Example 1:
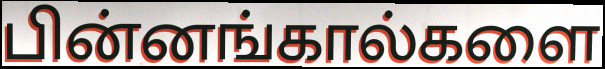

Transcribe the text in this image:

பின்னங்கால்களை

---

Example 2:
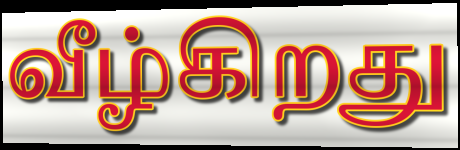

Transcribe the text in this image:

வீழ்கிறது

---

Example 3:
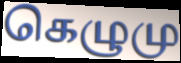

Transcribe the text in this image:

கெழுமு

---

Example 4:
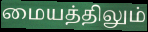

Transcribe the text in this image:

மையத்திலும்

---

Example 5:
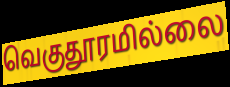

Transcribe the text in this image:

வெகுதூரமில்லை